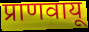
प्राणवायू